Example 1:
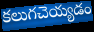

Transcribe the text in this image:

కలుగచెయ్యడం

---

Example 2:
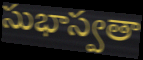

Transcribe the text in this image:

సుభాస్వతా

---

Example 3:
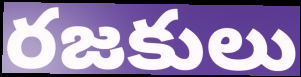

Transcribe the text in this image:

రజకులు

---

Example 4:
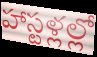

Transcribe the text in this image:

హాస్టళ్లల్లో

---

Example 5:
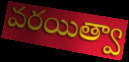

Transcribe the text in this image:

వరయిత్వా